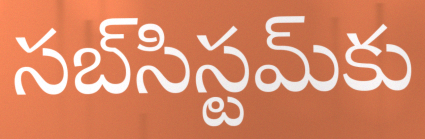
సబ్‌సిస్టమ్‌కు